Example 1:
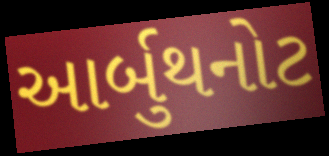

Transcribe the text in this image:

આર્બુથનોટ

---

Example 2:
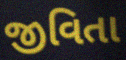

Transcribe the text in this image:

જીવિતા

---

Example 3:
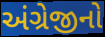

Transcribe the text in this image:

અંગ્રેજીનો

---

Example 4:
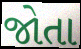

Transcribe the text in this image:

જોતા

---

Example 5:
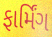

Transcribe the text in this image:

ફાર્મિંગ